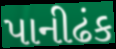
પાનીઢંક